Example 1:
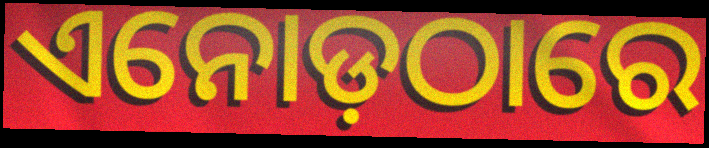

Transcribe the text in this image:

ଏନୋଡ଼ଠାରେ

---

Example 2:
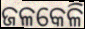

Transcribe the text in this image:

ଜଳକେଳି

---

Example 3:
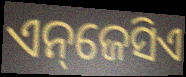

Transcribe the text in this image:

ଏନ୍‌ଜେସିଏ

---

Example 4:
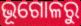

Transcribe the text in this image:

ଭୂଗୋଳରୁ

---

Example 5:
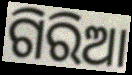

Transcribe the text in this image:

ଗିରିଆ